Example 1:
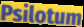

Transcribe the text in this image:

Psilotum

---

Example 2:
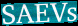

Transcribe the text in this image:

SAEVs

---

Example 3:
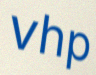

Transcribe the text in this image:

vhp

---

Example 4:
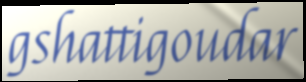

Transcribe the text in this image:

gshattigoudar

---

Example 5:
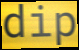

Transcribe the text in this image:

dip